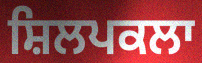
ਸ਼ਿਲਪਕਲਾ